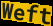
Weft